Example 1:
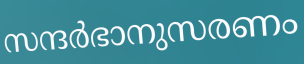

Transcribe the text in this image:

സന്ദർഭാനുസരണം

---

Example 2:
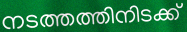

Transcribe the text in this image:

നടത്തത്തിനിടക്ക്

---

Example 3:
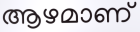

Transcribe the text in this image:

ആഴമാണ്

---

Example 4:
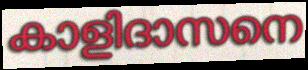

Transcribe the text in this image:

കാളിദാസനെ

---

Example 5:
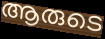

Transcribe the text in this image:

ആരുടെ